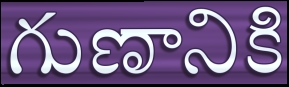
గుణానికి